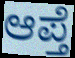
ಆಪ್ತೆ